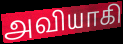
அவியாகி